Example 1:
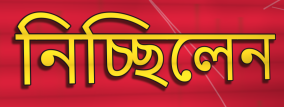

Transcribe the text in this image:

নিচ্ছিলেন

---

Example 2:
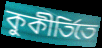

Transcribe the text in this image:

কুকীর্তিতে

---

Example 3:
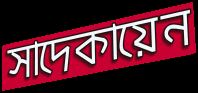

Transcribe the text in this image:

সাদেকায়েন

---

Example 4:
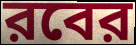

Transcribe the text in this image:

রবের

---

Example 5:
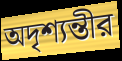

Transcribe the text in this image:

অদৃশ্যন্তীর